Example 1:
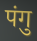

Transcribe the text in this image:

पंगु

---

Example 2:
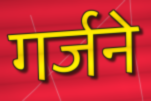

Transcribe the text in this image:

गर्जने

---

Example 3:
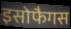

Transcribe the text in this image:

इसोफैगस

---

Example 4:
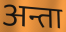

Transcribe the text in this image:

अन्ता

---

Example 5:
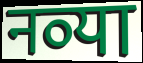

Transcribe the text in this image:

नव्‍या